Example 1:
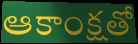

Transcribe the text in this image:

ఆకాంక్షతో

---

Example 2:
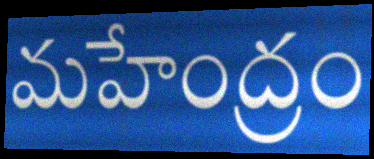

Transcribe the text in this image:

మహేంద్రం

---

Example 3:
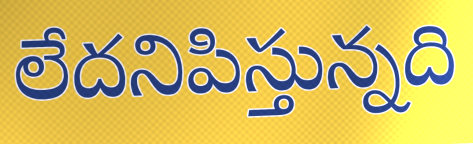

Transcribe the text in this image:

లేదనిపిస్తున్నది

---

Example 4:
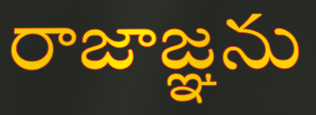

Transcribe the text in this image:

రాజాజ్ఞను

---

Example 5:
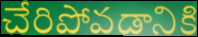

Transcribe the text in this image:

చేరిపోవడానికి